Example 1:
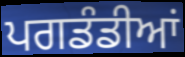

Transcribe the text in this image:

ਪਗਡੰਡੀਆਂ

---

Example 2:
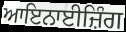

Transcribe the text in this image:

ਆਇਨਾਈਜ਼ਿੰਗ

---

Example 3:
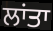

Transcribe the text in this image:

ਲਾਂਤਾ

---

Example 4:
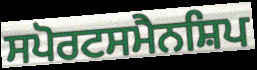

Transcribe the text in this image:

ਸਪੋਰਟਸਮੈਨਸ਼ਿਪ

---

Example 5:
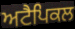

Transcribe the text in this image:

ਅਟੈਪਿਕਲ